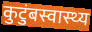
कुटुंबस्वास्थ्य